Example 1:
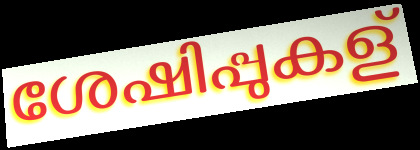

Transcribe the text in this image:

ശേഷിപ്പുകള്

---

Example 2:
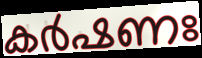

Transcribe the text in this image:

കർഷണഃ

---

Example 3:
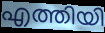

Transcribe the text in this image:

എത്തിയി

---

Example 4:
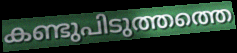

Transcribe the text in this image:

കണ്ടുപിടുത്തത്തെ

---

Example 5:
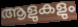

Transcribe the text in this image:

ആളുകളും